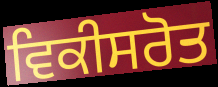
ਵਿਕੀਸਰੋਤ